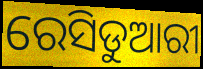
ରେସିଡୁଆରୀ